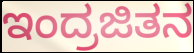
ಇಂದ್ರಜಿತನ